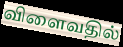
விளைவதில்